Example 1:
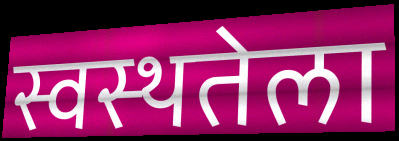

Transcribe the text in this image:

स्वस्थतेला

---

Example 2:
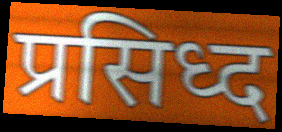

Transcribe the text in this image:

प्रसिध्द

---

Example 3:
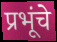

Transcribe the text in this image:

प्रभूंचे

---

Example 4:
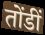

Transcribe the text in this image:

तोंडीं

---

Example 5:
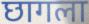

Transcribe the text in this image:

छागला